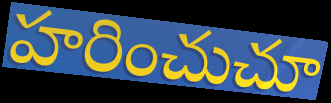
హరించుచూ